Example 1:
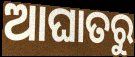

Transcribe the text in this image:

ଆଘାତରୁ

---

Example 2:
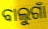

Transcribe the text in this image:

ବାଲୁଗାଁ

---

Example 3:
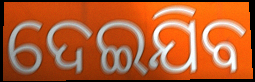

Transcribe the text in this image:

ଦେଇଯିବ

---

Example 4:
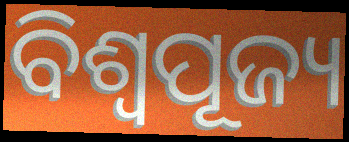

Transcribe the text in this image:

ବିଶ୍ୱପୂଜ୍ୟ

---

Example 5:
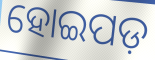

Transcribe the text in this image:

ହୋଇପଡ଼